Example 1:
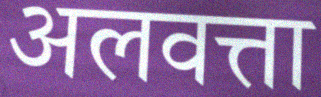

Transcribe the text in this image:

अलवत्ता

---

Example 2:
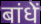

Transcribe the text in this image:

बांधें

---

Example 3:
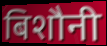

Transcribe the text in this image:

बिशौनी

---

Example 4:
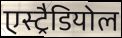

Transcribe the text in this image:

एस्ट्रैडियोल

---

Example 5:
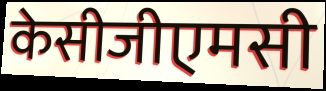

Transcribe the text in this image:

केसीजीएमसी